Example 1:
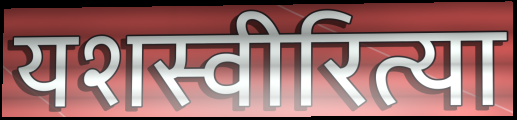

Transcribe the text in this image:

यशस्वीरित्या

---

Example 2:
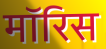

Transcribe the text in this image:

मॉरिस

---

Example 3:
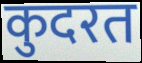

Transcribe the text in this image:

कुदरत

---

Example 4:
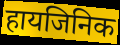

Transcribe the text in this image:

हायजिनिक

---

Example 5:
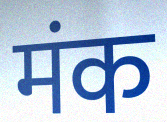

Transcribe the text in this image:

मंक